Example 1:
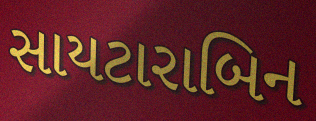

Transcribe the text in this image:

સાયટારાબિન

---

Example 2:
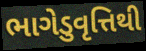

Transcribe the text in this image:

ભાગેડુવૃત્તિથી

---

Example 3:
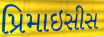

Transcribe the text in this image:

પ્રિમાઇસીસ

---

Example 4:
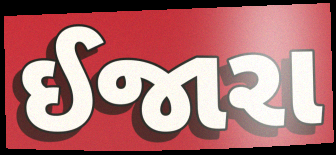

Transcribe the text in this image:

ઈજારા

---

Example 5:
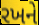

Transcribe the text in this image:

રખને